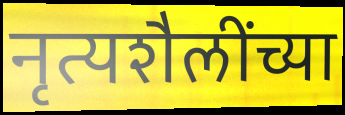
नृत्यशैलींच्या